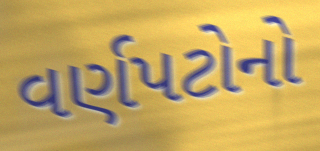
વર્ણપટોનો